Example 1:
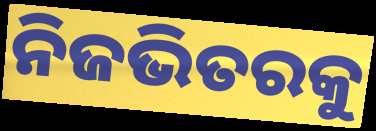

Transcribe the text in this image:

ନିଜଭିତରକୁ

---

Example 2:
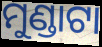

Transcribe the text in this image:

ମୁଣ୍ଡାଟା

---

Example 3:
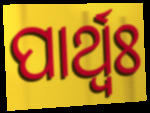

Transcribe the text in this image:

ପାର୍ଥ୍ବଃ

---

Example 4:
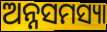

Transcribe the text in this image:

ଅନ୍ନସମସ୍ୟା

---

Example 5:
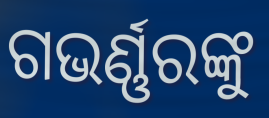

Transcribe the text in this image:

ଗଭର୍ଣ୍ଣରଙ୍କୁ